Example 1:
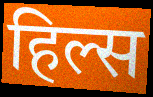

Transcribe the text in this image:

हिल्स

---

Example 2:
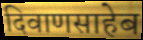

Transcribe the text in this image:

दिवाणसाहेब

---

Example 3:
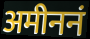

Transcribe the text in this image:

अमीननं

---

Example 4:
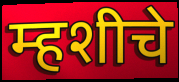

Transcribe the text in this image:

म्हशीचे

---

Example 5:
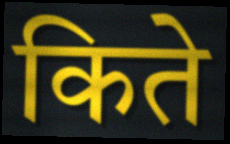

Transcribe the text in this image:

किते